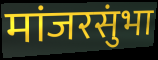
मांजरसुंभा